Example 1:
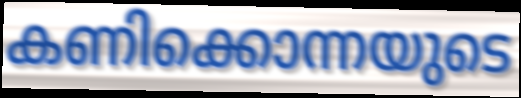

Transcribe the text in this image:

കണിക്കൊന്നയുടെ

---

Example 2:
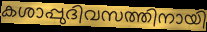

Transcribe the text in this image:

കശാപ്പുദിവസത്തിനായി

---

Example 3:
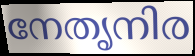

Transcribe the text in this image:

നേതൃനിര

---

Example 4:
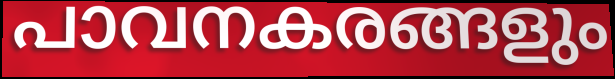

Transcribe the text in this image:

പാവനകരങ്ങളും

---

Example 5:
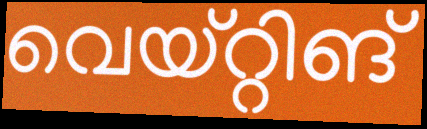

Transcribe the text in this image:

വെയ്റ്റിങ്